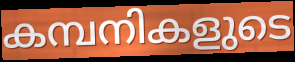
കമ്പനികളുടെ